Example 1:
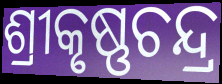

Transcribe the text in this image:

ଶ୍ରୀକୃଷ୍ଣଚନ୍ଦ୍ର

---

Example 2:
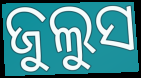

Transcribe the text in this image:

ଜୁଲୁସ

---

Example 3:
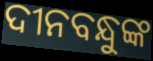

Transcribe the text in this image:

ଦୀନବନ୍ଧୁଙ୍କ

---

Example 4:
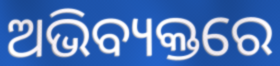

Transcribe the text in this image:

ଅଭିବ୍ୟକ୍ତରେ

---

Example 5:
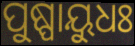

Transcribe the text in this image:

ପୁଷ୍ପାୟୁଧଃ